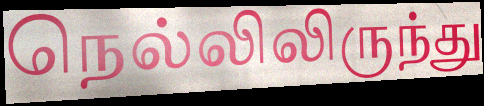
நெல்லிலிருந்து